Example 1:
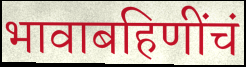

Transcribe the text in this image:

भावाबहिणींचं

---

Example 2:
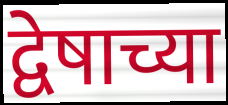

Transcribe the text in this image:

द्वेषाच्या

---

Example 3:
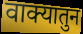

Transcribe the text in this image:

वाक्यातुन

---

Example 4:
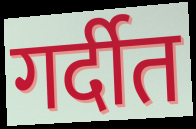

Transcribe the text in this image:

गर्दीत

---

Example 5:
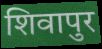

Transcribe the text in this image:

शिवापुर